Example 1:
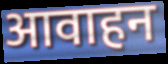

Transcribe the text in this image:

आवाहन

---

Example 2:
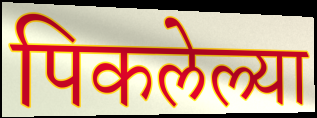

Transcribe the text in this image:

पिकलेल्या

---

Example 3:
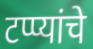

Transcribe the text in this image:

टप्प्यांचे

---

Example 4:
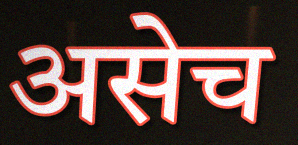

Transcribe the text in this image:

असेच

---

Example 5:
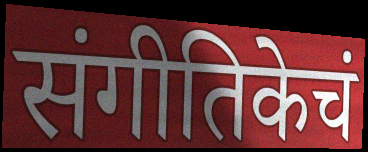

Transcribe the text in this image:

संगीतिकेचं